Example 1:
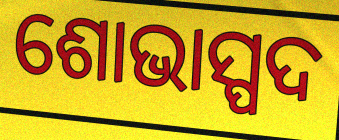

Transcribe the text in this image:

ଶୋଭାସ୍ପଦ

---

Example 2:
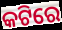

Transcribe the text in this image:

କଟିରେ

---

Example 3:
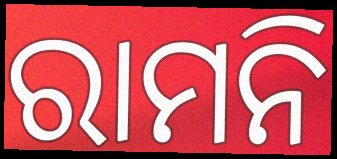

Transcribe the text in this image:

ରାମନି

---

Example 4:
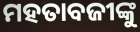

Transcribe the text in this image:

ମହତାବଜୀଙ୍କୁ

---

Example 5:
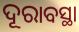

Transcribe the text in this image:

ଦୂରାବସ୍ଥା